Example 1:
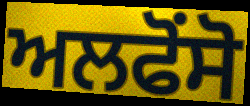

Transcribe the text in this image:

ਅਲਫੋਂਸੋ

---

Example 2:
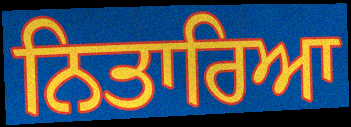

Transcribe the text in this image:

ਨਿਤਾਰਿਆ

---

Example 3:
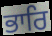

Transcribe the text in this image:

ਭਾਰਿ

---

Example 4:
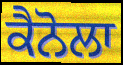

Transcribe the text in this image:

ਕੈਨੋਲਾ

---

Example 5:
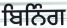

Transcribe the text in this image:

ਬਿਨਿੰਗ